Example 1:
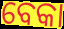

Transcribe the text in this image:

ବେକା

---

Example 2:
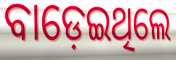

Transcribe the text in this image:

ବାଡ଼େଇଥିଲେ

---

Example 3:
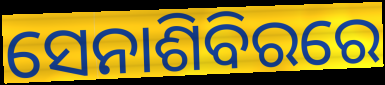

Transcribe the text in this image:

ସେନାଶିବିରରେ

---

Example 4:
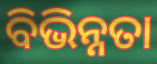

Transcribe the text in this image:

ବିଭିନ୍ନତା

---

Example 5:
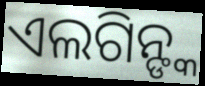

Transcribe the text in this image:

ଏଲଗିନ୍ଙ୍କ